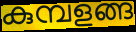
കുമ്പളങ്ങ